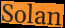
Solan